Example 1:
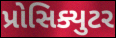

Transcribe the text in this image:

પ્રોસિક્યુટર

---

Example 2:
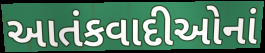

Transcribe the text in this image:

આતંકવાદીઓનાં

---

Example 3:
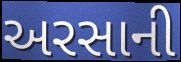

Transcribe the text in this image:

અરસાની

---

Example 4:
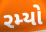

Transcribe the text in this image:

રમ્યો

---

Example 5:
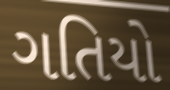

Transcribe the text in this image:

ગતિયો